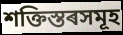
শক্তিস্তৰসমূহ